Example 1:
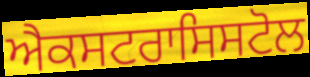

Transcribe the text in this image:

ਐਕਸਟਰਾਸਿਸਟੋਲ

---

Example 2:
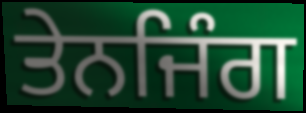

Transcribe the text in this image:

ਤੇਨਜਿੰਗ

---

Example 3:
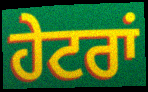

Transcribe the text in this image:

ਹੇਟਰਾਂ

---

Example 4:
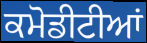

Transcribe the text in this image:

ਕਮੋਡੀਟੀਆਂ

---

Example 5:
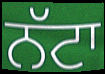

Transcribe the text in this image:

ਨੱਟਾ